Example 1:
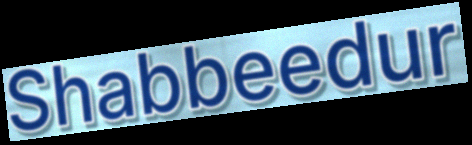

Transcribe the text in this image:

Shabbeedur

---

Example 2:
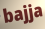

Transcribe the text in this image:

bajja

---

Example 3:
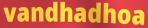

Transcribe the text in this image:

vandhadhoa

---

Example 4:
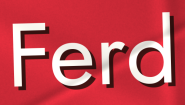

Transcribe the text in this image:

Ferd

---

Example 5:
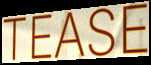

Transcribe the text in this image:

TEASE